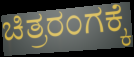
ಚಿತ್ರರಂಗಕ್ಕೆ